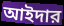
আইদার